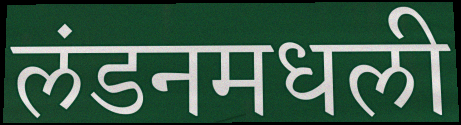
लंडनमधली